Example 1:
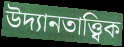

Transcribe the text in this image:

উদ্যানতাত্ত্বিক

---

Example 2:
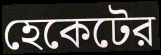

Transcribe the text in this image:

হেকেটের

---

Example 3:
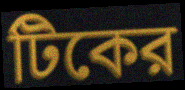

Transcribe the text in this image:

টিকের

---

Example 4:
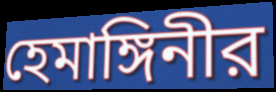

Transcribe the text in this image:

হেমাঙ্গিনীর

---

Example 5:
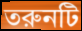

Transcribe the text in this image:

তরুনটি